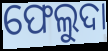
ଫେଲୁଦା